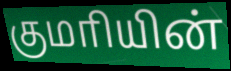
குமரியின்